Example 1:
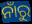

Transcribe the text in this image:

ନାଁରୁ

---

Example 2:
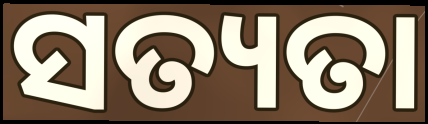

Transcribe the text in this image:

ସତ୍ୟତା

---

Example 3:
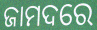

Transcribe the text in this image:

ଜାମଦରେ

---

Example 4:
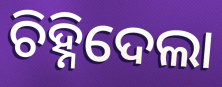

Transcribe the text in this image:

ଚିହ୍ନିଦେଲା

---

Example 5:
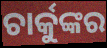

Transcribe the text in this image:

ଚାର୍କୁଙ୍କର